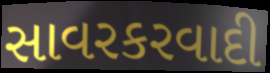
સાવરકરવાદી